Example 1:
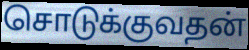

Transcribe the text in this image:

சொடுக்குவதன்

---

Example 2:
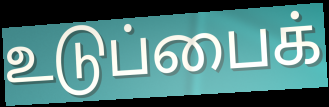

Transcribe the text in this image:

உடுப்பைக்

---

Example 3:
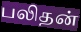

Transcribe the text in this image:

பலிதன்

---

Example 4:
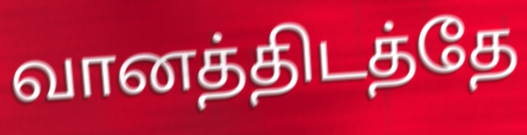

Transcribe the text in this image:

வானத்திடத்தே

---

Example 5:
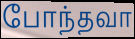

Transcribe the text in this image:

போந்தவா